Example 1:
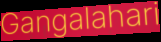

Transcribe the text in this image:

Gangalahari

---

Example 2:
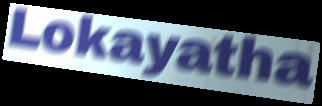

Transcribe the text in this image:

Lokayatha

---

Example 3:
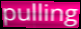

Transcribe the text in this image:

pulling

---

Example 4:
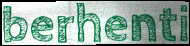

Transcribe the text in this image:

berhenti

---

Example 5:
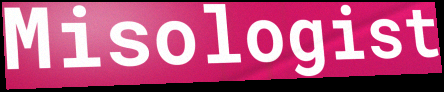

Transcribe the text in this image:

Misologist